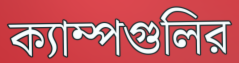
ক্যাম্পগুলির